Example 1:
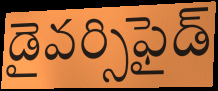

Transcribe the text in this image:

డైవర్సిఫైడ్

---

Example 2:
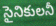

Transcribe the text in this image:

సైనికులనీ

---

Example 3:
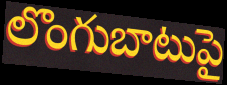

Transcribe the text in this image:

లొంగుబాటుపై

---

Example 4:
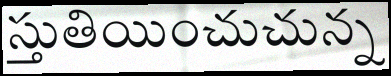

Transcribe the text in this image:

స్తుతియించుచున్న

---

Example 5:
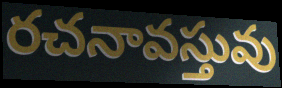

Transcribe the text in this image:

రచనావస్తువు